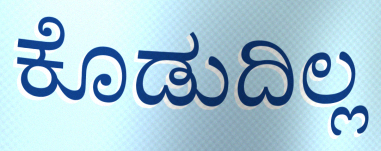
ಕೊಡುದಿಲ್ಲ